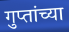
गुप्तांच्या